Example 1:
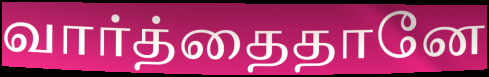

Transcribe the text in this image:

வார்த்தைதானே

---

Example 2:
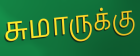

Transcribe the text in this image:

சுமாருக்கு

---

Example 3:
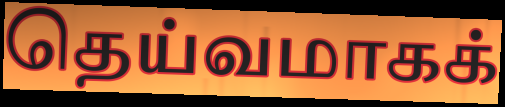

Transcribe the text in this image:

தெய்வமாகக்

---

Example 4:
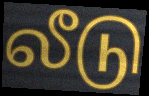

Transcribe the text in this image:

லீடு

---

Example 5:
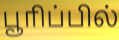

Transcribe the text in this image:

பூரிப்பில்